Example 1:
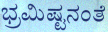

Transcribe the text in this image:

ಭ್ರಮಿಷ್ಟನಂತೆ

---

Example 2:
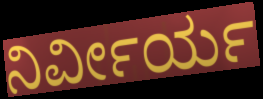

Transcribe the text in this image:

ನಿರ್ವೀರ್ಯ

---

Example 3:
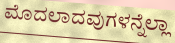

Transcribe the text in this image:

ಮೊದಲಾದವುಗಳನ್ನೆಲ್ಲಾ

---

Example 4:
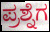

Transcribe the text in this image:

ಪ್ರಶ್ನೆಗ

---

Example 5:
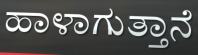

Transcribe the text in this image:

ಹಾಳಾಗುತ್ತಾನೆ